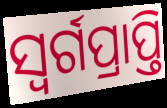
ସ୍ୱର୍ଗପ୍ରାପ୍ତି